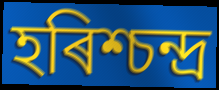
হৰিশ্চন্দ্ৰ